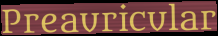
Preauricular